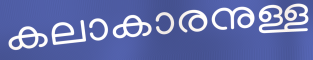
കലാകാരനുള്ള